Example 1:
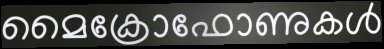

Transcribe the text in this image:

മൈക്രോഫോണുകൾ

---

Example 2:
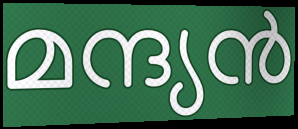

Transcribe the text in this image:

മന്ദ്യൻ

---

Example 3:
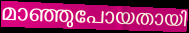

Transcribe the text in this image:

മാഞ്ഞുപോയതായി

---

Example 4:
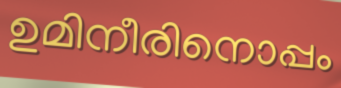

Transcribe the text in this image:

ഉമിനീരിനൊപ്പം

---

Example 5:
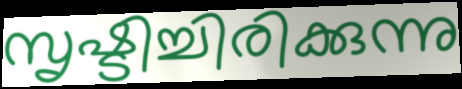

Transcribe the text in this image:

സൃഷ്ടിച്ചിരിക്കുന്നു